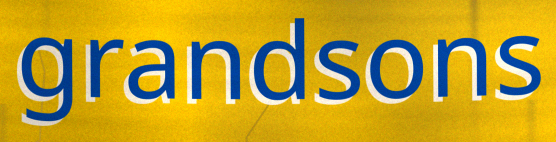
grandsons